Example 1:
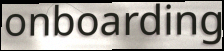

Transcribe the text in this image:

onboarding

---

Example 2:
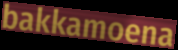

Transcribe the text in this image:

bakkamoena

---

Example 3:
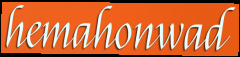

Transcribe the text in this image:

hemahonwad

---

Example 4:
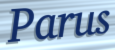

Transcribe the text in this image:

Parus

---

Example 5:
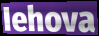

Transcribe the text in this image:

Iehova